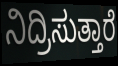
ನಿದ್ರಿಸುತ್ತಾರೆ